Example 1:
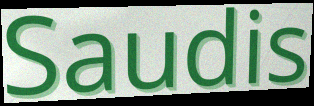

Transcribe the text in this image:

Saudis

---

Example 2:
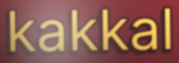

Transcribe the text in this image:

kakkal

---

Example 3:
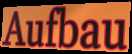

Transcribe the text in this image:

Aufbau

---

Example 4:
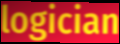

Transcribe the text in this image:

logician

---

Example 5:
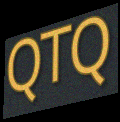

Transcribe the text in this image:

QTQ